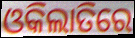
ଓକିଲାତିରେ